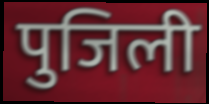
पुजिली